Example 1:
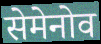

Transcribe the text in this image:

सेमेनोव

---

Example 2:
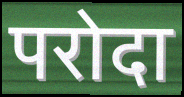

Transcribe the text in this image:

परोदा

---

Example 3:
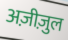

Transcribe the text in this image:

अज़ीज़ुल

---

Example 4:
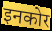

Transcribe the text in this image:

इनकोर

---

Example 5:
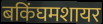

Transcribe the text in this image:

बकिंघमशायर